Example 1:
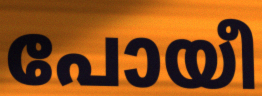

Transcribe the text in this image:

പോയീ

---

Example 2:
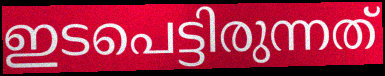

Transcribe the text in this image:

ഇടപെട്ടിരുന്നത്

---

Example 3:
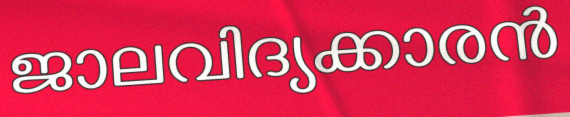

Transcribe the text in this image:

ജാലവിദ്യക്കാരൻ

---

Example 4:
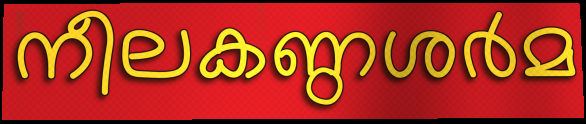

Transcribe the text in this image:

നീലകണ്ഠശർമ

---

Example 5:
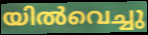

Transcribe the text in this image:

യിൽവെച്ചു